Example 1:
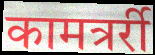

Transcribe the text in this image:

कामत्रर्री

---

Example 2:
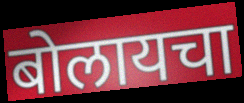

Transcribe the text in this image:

बोलायचा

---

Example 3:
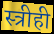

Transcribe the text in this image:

स्त्रीही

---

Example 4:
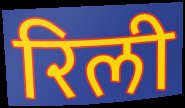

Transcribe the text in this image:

रिली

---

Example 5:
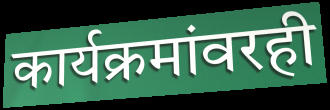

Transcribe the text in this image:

कार्यक्रमांवरही